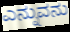
ಎನ್ನುವನು